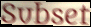
Subset